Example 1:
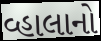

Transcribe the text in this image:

વ્હાલાનો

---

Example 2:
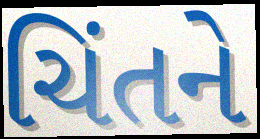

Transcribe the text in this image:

ચિંતને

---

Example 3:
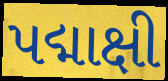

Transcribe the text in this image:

પદ્માક્ષી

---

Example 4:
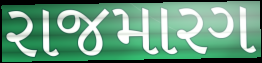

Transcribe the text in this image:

રાજમારગ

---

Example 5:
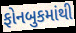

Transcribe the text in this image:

ફોનબુકમાંથી